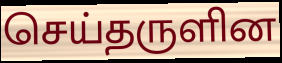
செய்தருளின